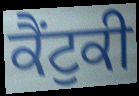
ਕੈਂਟੁਕੀ